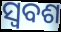
ସ୍ଵବଶ